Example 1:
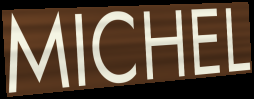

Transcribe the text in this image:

MICHEL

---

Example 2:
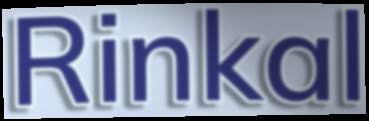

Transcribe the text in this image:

Rinkal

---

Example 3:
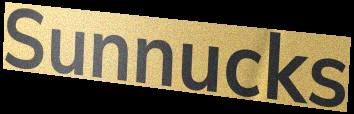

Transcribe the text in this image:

Sunnucks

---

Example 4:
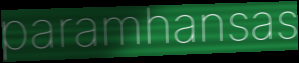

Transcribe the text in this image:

paramhansas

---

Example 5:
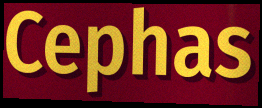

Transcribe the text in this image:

Cephas